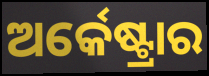
ଅର୍କେଷ୍ଟ୍ରାର